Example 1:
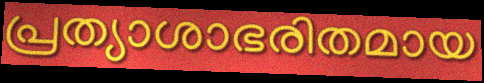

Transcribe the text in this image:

പ്രത്യാശാഭരിതമായ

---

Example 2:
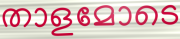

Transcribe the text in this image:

താളമോടെ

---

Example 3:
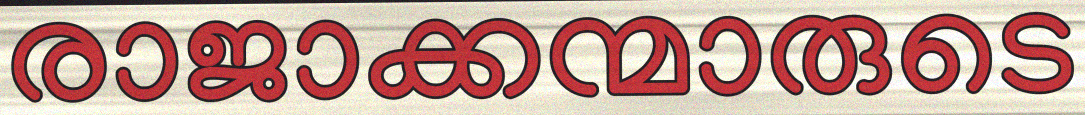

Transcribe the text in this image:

രാജാക്കന്മാരുടെ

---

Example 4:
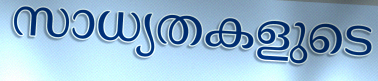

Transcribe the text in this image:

സാധ്യതകളുടെ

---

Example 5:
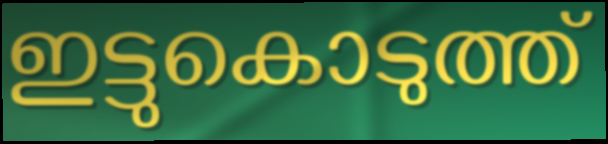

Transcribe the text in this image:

ഇട്ടുകൊടുത്ത്